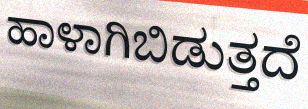
ಹಾಳಾಗಿಬಿಡುತ್ತದೆ